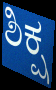
ಶಿಕ್ಷ